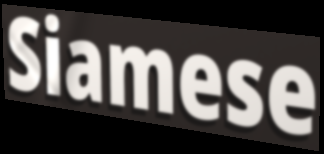
Siamese